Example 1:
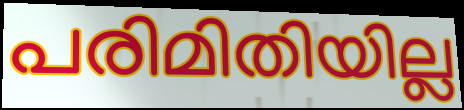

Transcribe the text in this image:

പരിമിതിയില്ല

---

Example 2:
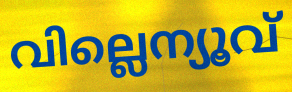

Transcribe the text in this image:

വില്ലെന്യൂവ്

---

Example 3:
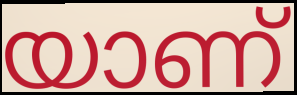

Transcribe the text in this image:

യാണ്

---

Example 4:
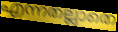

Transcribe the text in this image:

എന്നതല്ലാതെ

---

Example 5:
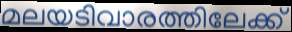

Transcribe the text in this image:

മലയടിവാരത്തിലേക്ക്